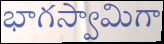
భాగస్వామిగా